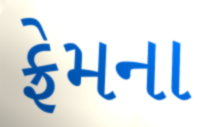
ફ્રેમના